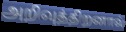
அறிவுத்திறனால்